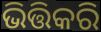
ଭିତ୍ତିକରି